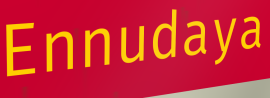
Ennudaya